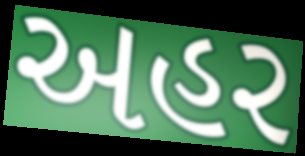
અહર